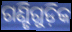
ଗଣ୍ଡିଗୁଡ଼ିକ